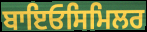
ਬਾਇਓਸਿਮਿਲਰ